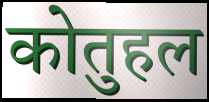
कोतुहल